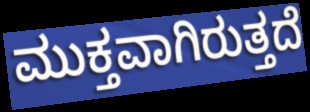
ಮುಕ್ತವಾಗಿರುತ್ತದೆ